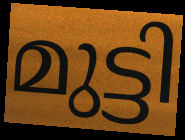
മുട്ടി